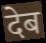
देब